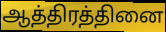
ஆத்திரத்தினை